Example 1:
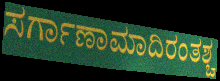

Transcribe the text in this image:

ಸರ್ಗಾಣಾಮಾದಿರಂತಶ್ಚ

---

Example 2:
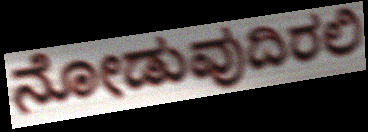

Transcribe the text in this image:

ನೋಡುವುದಿರಲಿ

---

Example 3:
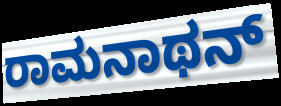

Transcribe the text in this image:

ರಾಮನಾಥನ್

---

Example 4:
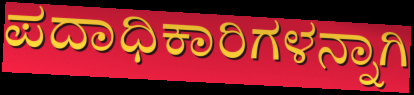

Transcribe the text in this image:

ಪದಾಧಿಕಾರಿಗಳನ್ನಾಗಿ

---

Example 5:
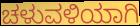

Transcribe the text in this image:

ಚಳುವಳಿಯಾಗಿ